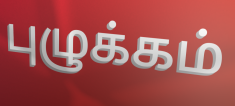
புழுக்கம்